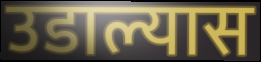
उडाल्यास